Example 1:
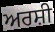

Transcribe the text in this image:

ਅਰਸ਼ੀ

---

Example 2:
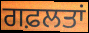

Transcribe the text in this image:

ਗਫ਼ਲਤਾਂ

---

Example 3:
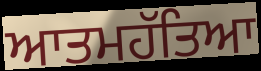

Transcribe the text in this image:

ਆਤਮਹੱਤਿਆ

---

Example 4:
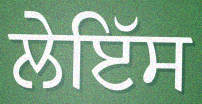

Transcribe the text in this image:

ਲੇਇੱਸ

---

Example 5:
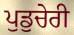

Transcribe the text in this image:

ਪੁਡੁਚੇਰੀ